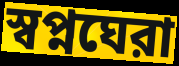
স্বপ্নঘেরা